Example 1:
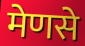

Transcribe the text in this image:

मेणसे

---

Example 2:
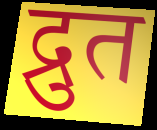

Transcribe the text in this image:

द्रुत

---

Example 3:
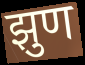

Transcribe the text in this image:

झुण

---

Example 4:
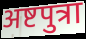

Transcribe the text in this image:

अष्टपुत्रा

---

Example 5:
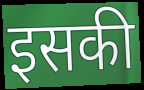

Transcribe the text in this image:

इसकी